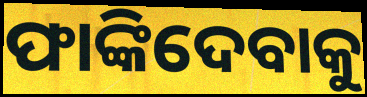
ଫାଙ୍କିଦେବାକୁ